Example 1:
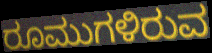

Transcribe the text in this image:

ರೂಮುಗಳಿರುವ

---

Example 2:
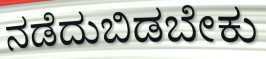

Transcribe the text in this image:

ನಡೆದುಬಿಡಬೇಕು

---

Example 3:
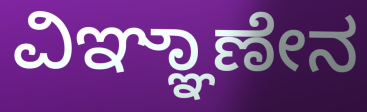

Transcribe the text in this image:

ವಿಞ್ಞಾಣೇನ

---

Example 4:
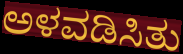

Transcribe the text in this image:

ಅಳವಡಿಸಿತು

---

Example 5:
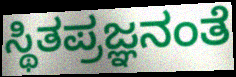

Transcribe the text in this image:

ಸ್ಥಿತಪ್ರಜ್ಞನಂತೆ